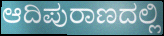
ಆದಿಪುರಾಣದಲ್ಲಿ